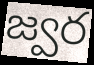
జ్వర